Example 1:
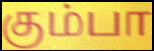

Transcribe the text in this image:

கும்பா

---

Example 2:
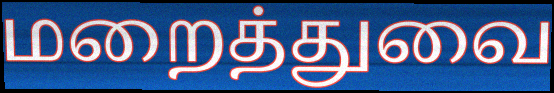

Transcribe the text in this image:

மறைத்துவை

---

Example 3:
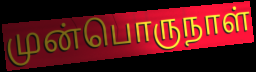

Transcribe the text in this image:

முன்பொருநாள்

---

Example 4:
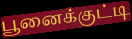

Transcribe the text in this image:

பூனைக்குட்டி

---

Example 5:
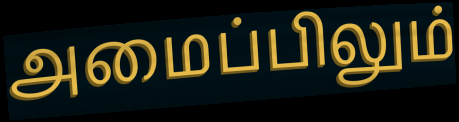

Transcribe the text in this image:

அமைப்பிலும்